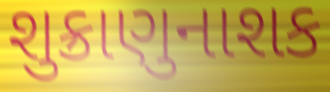
શુક્રાણુનાશક